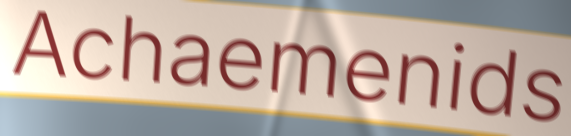
Achaemenids